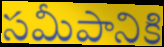
సమీపానికి